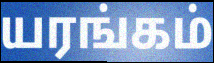
யரங்கம்